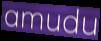
amudu